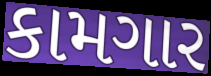
કામગાર